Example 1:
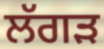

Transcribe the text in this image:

ਲੱਗੜ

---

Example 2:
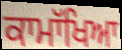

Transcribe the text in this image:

ਕਾਮਾੱਖਿਆ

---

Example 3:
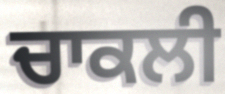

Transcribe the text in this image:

ਚਾਕਲੀ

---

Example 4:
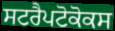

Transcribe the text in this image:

ਸਟਰੈਪਟੋਕੋਕਸ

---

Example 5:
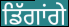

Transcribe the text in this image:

ਡਿੱਗਾਂਗੇ